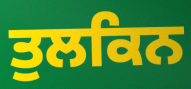
ਤੁਲਕਿਨ